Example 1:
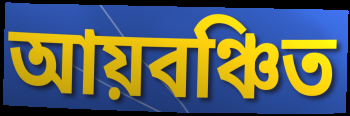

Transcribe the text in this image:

আয়বঞ্চিত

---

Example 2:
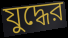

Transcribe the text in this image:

যুদ্ধের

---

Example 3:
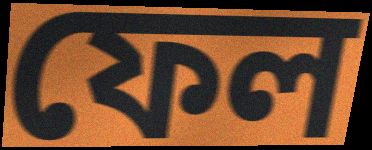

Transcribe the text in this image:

ফেল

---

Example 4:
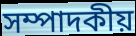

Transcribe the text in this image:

সম্পাদকীয়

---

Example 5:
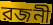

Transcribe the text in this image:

রজনী